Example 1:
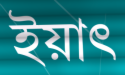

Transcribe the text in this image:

ইয়াৎ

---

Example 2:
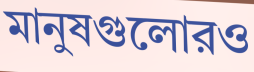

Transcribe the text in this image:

মানুষগুলোরও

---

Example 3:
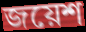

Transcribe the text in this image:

জয়েশ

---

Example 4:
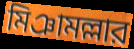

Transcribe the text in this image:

মিঞামল্লার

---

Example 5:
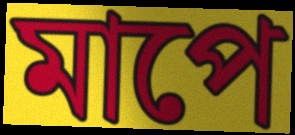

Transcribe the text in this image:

মাপে